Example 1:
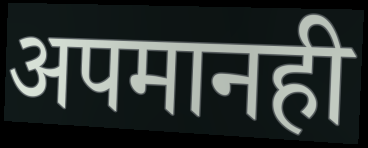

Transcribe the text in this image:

अपमानही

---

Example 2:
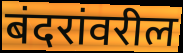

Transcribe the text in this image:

बंदरांवरील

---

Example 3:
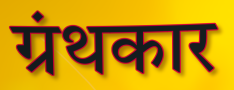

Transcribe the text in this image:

ग्रंथकार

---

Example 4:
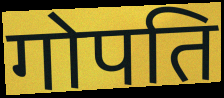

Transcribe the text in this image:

गोपति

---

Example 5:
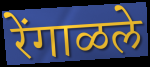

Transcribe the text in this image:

रेंगाळले